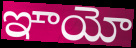
ఞాయో